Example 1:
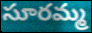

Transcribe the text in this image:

సూరమ్మ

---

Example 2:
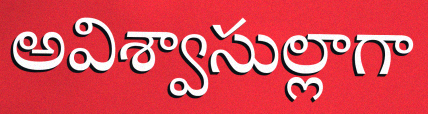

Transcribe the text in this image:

అవిశ్వాసుల్లాగా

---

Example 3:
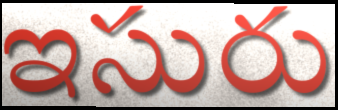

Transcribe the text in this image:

ఇసురు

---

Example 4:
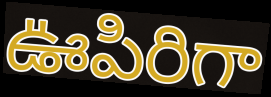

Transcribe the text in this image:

ఊపిరిగా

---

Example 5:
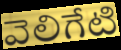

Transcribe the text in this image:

వెలిగేటి